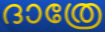
ദാത്രേ